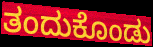
ತಂದುಕೊಂಡು